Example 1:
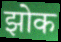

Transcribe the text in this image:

झोक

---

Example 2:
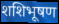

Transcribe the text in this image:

शशिभूषण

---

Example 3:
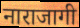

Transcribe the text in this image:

नाराजागी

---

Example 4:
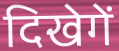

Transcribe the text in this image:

दिखेगें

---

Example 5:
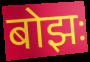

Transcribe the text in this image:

बोझः